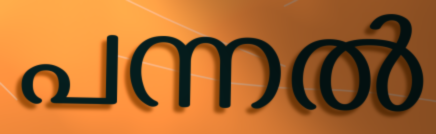
പന്നൽ